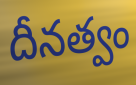
దీనత్వం